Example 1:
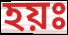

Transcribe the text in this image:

হয়ঃ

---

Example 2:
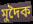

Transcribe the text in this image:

মুদৈক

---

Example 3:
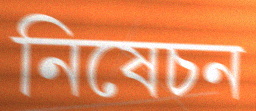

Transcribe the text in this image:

নিষেচন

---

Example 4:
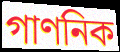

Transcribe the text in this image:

গাণনিক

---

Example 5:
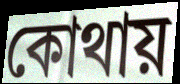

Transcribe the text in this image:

কোথায়